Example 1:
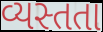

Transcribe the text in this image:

વ્યસ્તતા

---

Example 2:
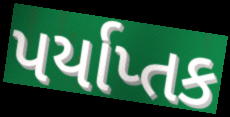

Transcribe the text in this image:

પર્યાપ્તક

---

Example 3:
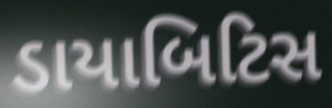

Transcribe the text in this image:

ડાયાબિટિસ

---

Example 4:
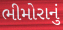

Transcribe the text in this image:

ભીમોરાનું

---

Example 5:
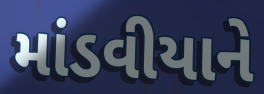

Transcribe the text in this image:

માંડવીયાને